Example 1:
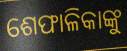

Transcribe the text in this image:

ଶେଫାଳିକାଙ୍କୁ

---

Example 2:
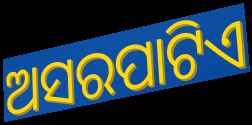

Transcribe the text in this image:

ଅସରପାଟିଏ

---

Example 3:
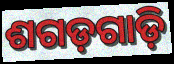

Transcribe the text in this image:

ଶଗଡ଼ଗାଡ଼ି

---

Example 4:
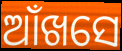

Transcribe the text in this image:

ଆଁଖସେ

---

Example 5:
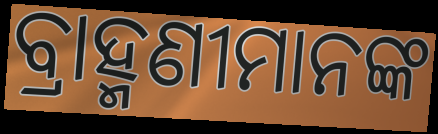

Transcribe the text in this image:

ବ୍ରାହ୍ମଣୀମାନଙ୍କ